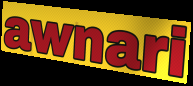
awnari